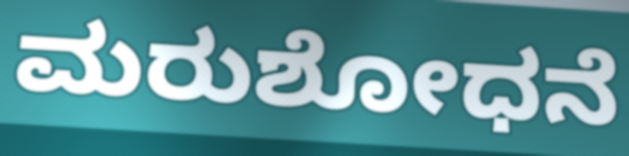
ಮರುಶೋಧನೆ